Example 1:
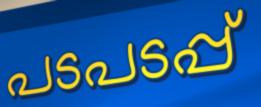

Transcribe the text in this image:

പടപടപ്പ്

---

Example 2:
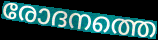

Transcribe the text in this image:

രോദനത്തെ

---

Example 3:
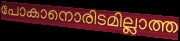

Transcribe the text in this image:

പോകാനൊരിടമില്ലാത്ത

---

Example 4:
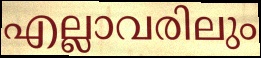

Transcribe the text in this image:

എല്ലാവരിലും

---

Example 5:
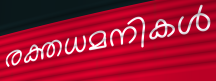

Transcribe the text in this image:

രക്തധമനികൾ